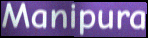
Manipura